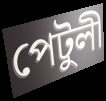
পেটুলী